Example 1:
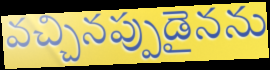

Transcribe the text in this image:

వచ్చినప్పుడైనను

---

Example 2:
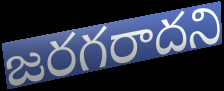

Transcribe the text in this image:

జరగరాదని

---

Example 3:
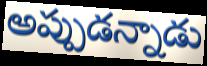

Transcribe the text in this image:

అప్పుడన్నాడు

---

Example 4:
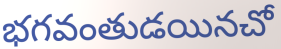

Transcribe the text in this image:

భగవంతుడయినచో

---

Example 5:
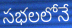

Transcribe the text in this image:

సభలలోనే